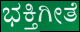
ಭಕ್ತಿಗೀತೆ